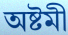
অষ্টমী